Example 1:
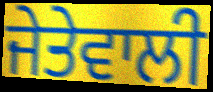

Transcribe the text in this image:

ਜੇਤੇਵਾਲੀ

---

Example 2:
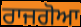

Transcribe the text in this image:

ਰਾਜਗੋਆ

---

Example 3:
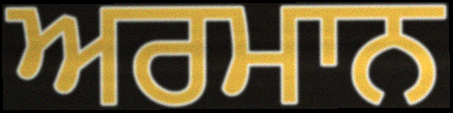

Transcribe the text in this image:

ਅਰਮਾਨ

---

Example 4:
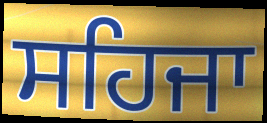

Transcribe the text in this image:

ਸਹਿਜਾ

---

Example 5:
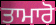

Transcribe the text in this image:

ਤਾਮਾਰੋ